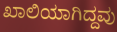
ಖಾಲಿಯಾಗಿದ್ದವು